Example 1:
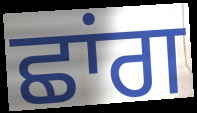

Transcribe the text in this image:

ਛਾਂਗ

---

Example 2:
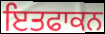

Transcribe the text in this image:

ਇਤਫਾਕਨ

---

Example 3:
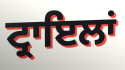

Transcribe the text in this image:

ਟ੍ਰਾਇਲਾਂ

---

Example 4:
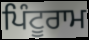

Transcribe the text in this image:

ਪਿੰਟੂਰਾਮ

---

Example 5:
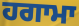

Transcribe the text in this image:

ਹਗਾਮਾ